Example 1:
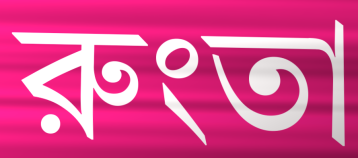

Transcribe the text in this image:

রুংতা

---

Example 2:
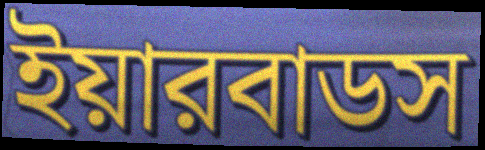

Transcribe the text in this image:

ইয়ারবাডস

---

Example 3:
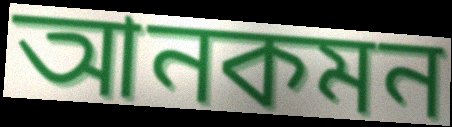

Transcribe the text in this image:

আনকমন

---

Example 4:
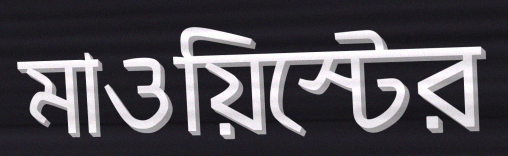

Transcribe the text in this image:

মাওয়িস্টের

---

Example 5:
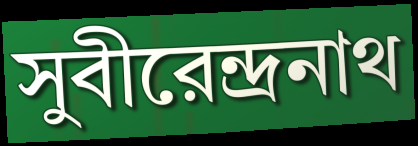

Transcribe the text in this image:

সুবীরেন্দ্রনাথ